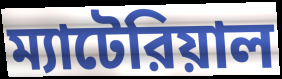
ম্যাটেরিয়াল